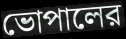
ভোপালের